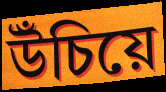
উঁচিয়ে